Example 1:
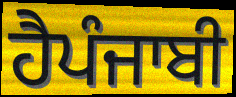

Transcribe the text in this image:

ਹੈਪੰਜਾਬੀ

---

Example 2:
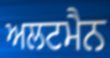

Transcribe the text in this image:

ਅਲਟਮੈਨ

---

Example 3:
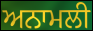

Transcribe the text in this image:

ਅਨਾਮਲੀ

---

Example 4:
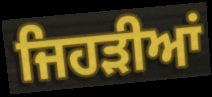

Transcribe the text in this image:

ਜਿਹੜੀਆਂ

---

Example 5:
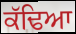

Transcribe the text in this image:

ਕੱਢਿਆ